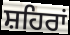
ਸ਼ਹਿਰਾਂ